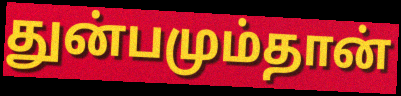
துன்பமும்தான்